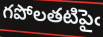
గపోలతటిపైఁ